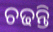
ଚଢନ୍ତି